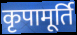
कृपामूर्ति